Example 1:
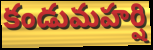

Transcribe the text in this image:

కండుమహర్షి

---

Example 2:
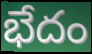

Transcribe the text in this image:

భేదం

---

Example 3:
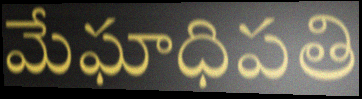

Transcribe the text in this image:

మేఘాధిపతి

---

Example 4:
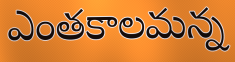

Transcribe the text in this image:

ఎంతకాలమన్న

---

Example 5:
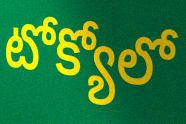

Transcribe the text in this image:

టోక్యోలో